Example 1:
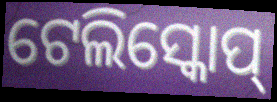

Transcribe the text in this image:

ଟେଲିସ୍କୋପ୍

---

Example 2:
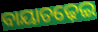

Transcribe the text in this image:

ବାୟାଚଢ଼େଇ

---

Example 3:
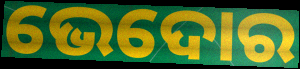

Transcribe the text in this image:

ଭେଦୋର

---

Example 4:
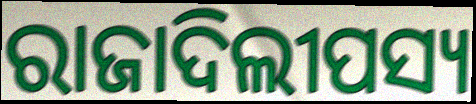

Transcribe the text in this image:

ରାଜାଦିଲୀପସ୍ୟ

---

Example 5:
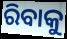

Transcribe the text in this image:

ରିବାକୁ